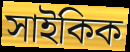
সাইকিক